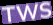
TWS